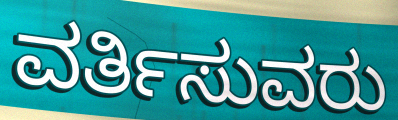
ವರ್ತಿಸುವರು